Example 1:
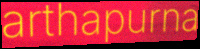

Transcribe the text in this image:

arthapurna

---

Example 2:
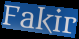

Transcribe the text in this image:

Fakir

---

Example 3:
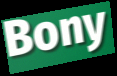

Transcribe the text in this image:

Bony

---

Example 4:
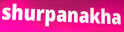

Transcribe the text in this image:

shurpanakha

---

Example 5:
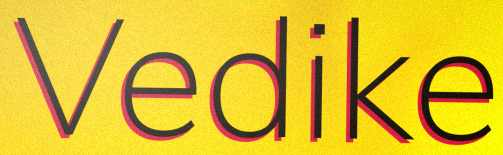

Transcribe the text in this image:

Vedike